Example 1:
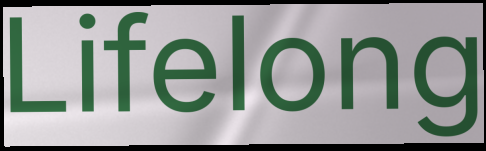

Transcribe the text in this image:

Lifelong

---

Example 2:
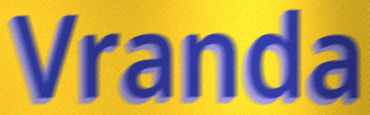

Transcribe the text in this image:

Vranda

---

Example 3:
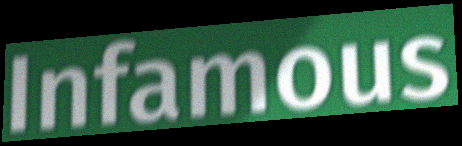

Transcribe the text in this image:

Infamous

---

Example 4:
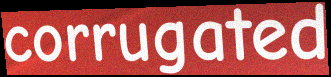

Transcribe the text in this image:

corrugated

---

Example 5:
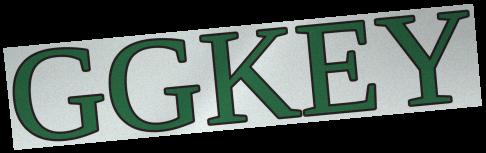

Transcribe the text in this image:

GGKEY